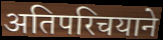
अतिपरिचयाने